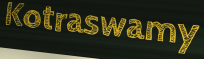
Kotraswamy